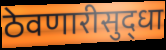
ठेवणारीसुद्धा